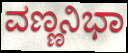
ವಣ್ಣನಿಭಾ